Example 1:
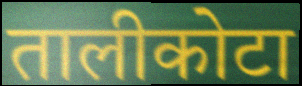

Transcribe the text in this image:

तालीकोटा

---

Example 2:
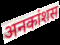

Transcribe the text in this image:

अनकांशस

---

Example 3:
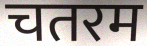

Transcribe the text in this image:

चतरम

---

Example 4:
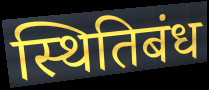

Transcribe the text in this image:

स्थितिबंध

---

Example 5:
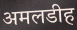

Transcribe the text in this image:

अमलडीह